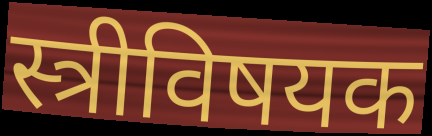
स्त्रीविषयक